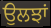
ਉਲਝਾਂ